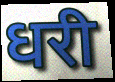
धरी